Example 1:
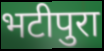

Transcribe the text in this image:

भटीपुरा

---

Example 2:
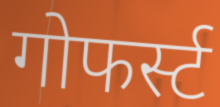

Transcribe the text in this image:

गोफर्स्ट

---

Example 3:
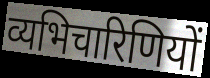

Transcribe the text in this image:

व्यभिचारिणियों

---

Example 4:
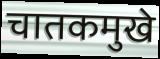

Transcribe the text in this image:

चातकमुखे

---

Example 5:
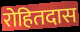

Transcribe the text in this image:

रोहितदास